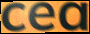
cea